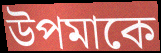
উপমাকে